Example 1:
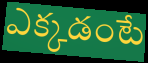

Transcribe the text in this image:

ఎక్కడంటే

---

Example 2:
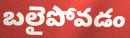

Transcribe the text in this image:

బలైపోవడం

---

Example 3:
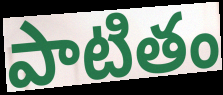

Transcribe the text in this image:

పాటితం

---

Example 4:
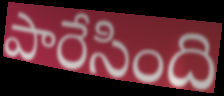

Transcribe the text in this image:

పారేసింది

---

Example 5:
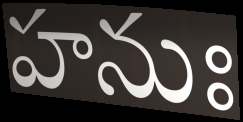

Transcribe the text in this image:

హనుః